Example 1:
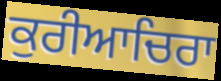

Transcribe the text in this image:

ਕੁਰੀਆਚਿਰਾ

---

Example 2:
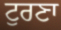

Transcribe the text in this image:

ਟੁਰਣਾ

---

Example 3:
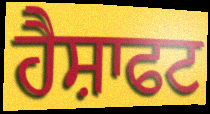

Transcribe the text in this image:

ਹੈਸ਼ਾਫਟ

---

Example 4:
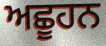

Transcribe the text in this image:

ਅਛੂਹਨ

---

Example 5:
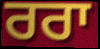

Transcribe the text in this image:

ਰਰਾ